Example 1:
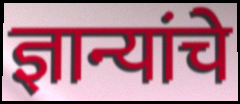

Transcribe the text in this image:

ज्ञान्यांचे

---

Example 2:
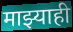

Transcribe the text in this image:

माझ्याही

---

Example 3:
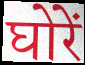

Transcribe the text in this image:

घोरें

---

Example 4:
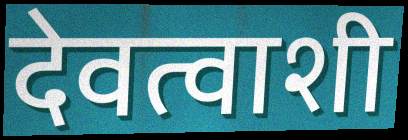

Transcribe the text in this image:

देवत्वाशी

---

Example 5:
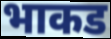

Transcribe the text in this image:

भाकड